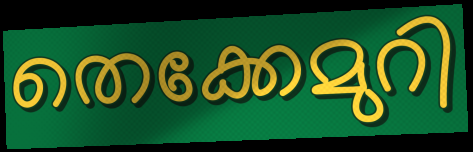
തെക്കേമുറി